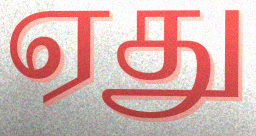
ஏது